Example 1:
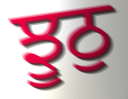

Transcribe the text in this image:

ਝੂਠੁ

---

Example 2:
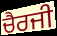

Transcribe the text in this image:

ਚੈਰਜੀ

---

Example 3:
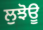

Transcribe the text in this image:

ਲੁਝੋਊ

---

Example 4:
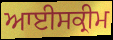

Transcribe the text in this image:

ਆਈਸਕ੍ਰੀਮ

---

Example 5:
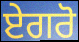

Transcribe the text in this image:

ਏਗਰੋ